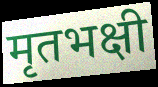
मृतभक्षी